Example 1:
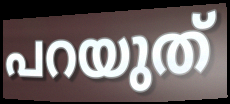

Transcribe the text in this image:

പറയുത്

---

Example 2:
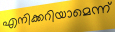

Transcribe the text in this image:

എനിക്കറിയാമെന്ന്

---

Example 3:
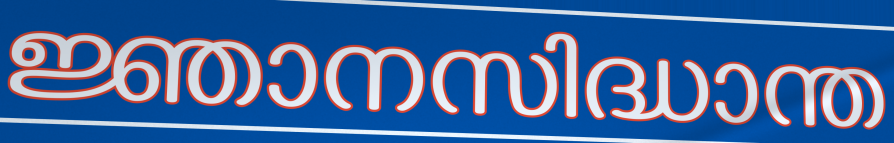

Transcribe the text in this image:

ജ്ഞാനസിദ്ധാന്ത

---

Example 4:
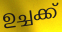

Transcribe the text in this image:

ഉച്ചക്ക്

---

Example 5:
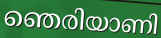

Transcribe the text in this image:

ഞെരിയാണി